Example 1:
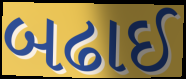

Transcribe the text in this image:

બઢાઈ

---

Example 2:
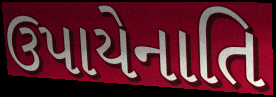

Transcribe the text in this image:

ઉપાયેનાતિ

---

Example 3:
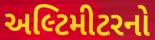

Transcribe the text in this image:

અલ્ટિમીટરનો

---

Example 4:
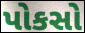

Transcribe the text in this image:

પોકસો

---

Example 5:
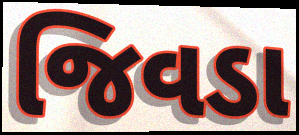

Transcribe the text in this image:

જિવડા